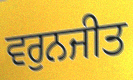
ਵਰੁਨਜੀਤ